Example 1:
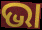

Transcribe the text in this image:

ଭା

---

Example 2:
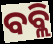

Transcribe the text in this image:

ବବ୍ଲି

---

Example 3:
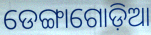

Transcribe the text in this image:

ଡେଙ୍ଗାଗୋଡ଼ିଆ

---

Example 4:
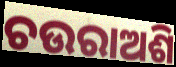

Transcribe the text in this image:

ଚଉରାଅଶି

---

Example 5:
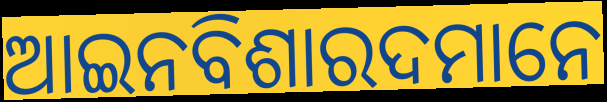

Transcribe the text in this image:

ଆଇନବିଶାରଦମାନେ